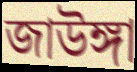
জাউঙ্গা